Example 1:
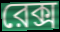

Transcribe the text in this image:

রেক্স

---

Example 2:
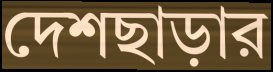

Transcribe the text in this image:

দেশছাড়ার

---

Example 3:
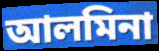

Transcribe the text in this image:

আলমিনা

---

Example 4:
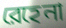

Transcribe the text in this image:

রেহেনা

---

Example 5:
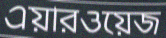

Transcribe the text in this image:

এয়ারওয়েজ